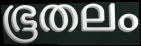
ഭൂതലം